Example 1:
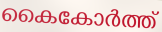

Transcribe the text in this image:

കൈകോർത്ത്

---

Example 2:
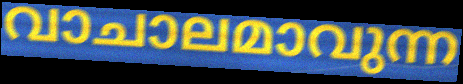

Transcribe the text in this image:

വാചാലമാവുന്ന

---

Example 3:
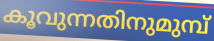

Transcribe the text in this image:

കൂവുന്നതിനുമുമ്പ്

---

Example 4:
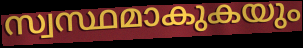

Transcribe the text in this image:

സ്വസ്ഥമാകുകയും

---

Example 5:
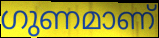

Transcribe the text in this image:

ഗുണമാണ്